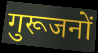
गुरूजनों